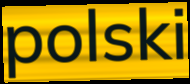
polski